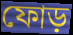
ফোড়